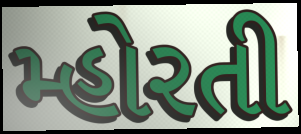
મ્હોરતી